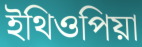
ইথিওপিয়া